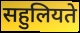
सहुलियते